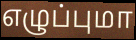
எழுப்புமா